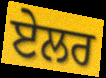
ਏਲਰ